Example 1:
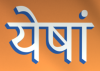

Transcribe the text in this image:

येषां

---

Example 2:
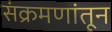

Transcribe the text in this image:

संक्रमणांतून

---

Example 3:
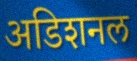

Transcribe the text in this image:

अडिशनल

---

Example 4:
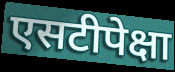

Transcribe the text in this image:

एसटीपेक्षा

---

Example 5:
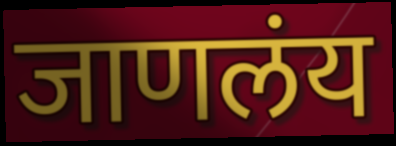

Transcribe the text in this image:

जाणलंय